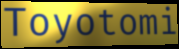
Toyotomi